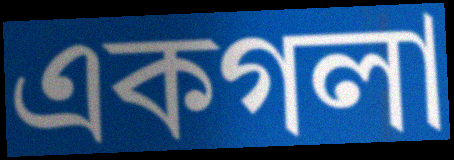
একগলা